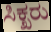
ಸಿಕ್ಖರು